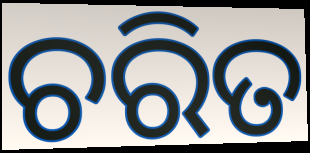
ଚରିତ